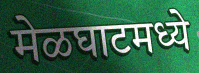
मेळघाटमध्ये